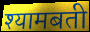
श्यामबती